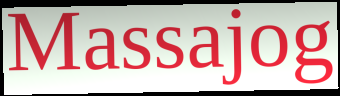
Massajog